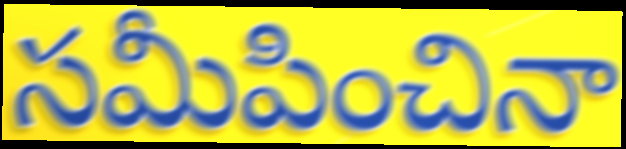
సమీపించినా